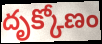
దృక్కోణం